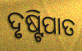
ଦୃଷ୍ଟିପାତ